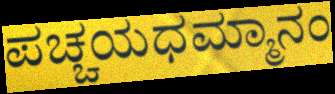
ಪಚ್ಚಯಧಮ್ಮಾನಂ